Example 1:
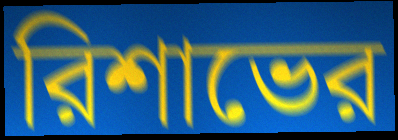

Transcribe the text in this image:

রিশাভের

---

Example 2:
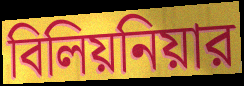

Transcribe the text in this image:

বিলিয়নিয়ার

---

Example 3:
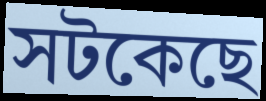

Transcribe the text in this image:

সটকেছে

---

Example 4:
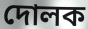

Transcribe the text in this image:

দোলক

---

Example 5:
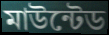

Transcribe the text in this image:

মাউন্টেড